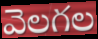
వెలగల